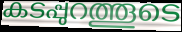
കടപ്പുറത്തൂടെ